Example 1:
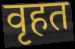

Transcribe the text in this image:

वृहत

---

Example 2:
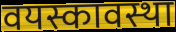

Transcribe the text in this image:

वयस्कावस्था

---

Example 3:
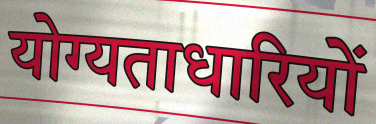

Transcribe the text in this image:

योग्यताधारियों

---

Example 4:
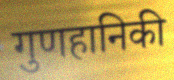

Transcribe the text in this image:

गुणहानिकी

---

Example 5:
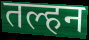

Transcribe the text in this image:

तल्हन